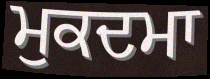
ਮੁਕਦਮਾ